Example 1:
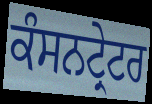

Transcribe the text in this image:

ਕੰਸਨਟ੍ਰੇਟਰ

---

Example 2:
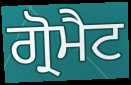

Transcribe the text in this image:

ਗ੍ਰੋਮੈਟ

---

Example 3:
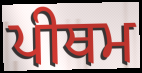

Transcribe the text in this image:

ਪੀਥਮ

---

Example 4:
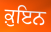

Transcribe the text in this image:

ਕ਼ੁਇਨ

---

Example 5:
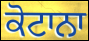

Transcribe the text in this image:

ਕੋਟਾਨਾ